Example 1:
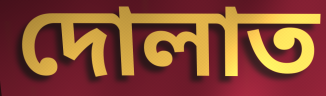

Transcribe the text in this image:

দোলাত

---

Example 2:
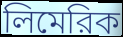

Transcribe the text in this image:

লিমেরিক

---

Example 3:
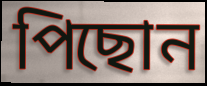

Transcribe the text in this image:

পিছোন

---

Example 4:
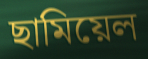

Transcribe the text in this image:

ছামিয়েল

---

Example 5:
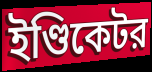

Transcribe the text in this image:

ইণ্ডিকেটর